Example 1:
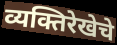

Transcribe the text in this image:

व्यक्तिरेखेचे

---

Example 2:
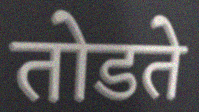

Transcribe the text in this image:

तोडते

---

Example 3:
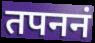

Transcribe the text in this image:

तपननं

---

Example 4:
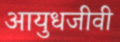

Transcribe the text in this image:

आयुधजीवी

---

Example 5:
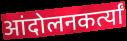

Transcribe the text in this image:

आंदोलनकर्त्यां